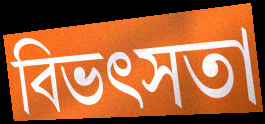
বিভৎসতা